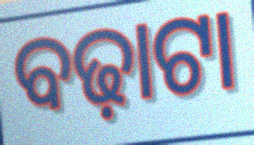
ବଢ଼ାଟା